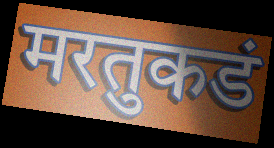
मरतुकडं